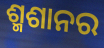
ଶ୍ମଶାନର